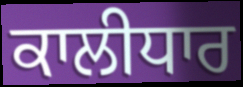
ਕਾਲੀਧਾਰ